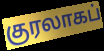
குரலாகப்